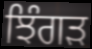
ਝਿੰਗੜ